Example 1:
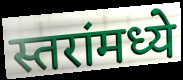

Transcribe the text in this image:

स्तरांमध्ये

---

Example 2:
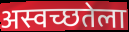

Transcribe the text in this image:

अस्वच्छतेला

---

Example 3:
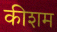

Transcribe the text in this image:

कीशम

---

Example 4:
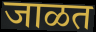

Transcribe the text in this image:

जाळत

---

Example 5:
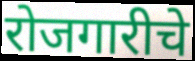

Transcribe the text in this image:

रोजगारीचे